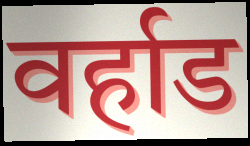
वर्हाड